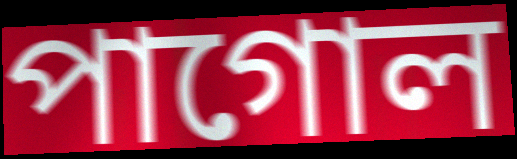
পাগোল